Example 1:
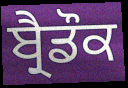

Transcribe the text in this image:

ਬ੍ਰੈਡੌਕ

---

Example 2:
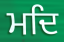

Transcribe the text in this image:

ਮਦਿ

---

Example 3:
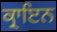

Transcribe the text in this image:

ਕ੍ਰਾਇਨ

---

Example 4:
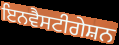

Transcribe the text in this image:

ਇਨਵੈਸਟੀਗੇਸ਼ਨ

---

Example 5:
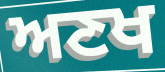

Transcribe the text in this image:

ਅਣਖ